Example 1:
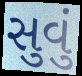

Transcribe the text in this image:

સુવું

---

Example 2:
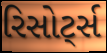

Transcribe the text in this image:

રિસોર્ટ્સ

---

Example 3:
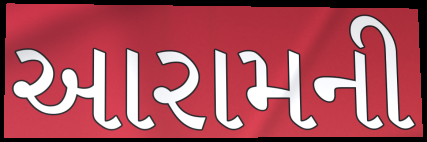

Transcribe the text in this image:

આરામની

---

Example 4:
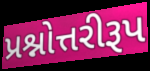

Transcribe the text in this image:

પ્રશ્નોત્તરીરૂપ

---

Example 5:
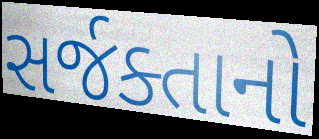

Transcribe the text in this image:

સર્જક્તાનો